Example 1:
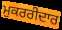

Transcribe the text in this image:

ਮੁਕਰਰੀਦਾਰ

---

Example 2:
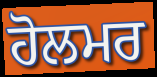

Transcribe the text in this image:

ਹੋਲਮਰ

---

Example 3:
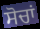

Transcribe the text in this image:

ਸੋਚਾਂ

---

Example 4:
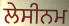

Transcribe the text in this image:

ਲੇਸੀਨਮ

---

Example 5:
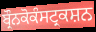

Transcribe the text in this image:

ਬ੍ਰੌਨਕੋਕੰਸਟ੍ਰਕਸ਼ਨ